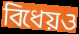
বিধেয়ও